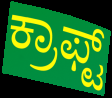
ಕ್ರಾಫ್ಟ್